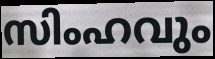
സിംഹവും